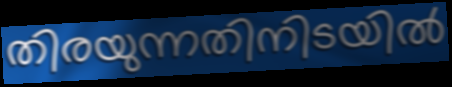
തിരയുന്നതിനിടയിൽ